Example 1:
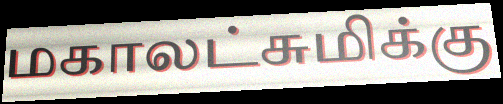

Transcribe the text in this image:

மகாலட்சுமிக்கு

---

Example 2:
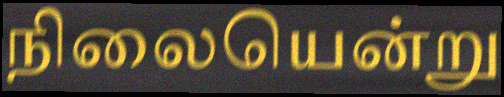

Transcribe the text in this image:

நிலையென்று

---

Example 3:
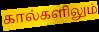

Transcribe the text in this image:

கால்களிலும்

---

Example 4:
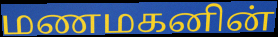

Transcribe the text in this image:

மணமகனின்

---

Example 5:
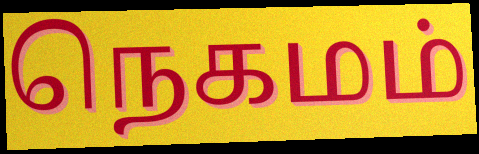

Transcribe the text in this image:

நெகமம்